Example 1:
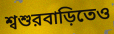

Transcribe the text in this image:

শ্বশুরবাড়িতেও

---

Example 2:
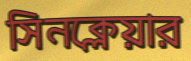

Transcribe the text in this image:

সিনক্লেয়ার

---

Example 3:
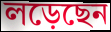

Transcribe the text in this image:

লড়েছেন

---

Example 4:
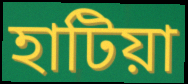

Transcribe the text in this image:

হাটিয়া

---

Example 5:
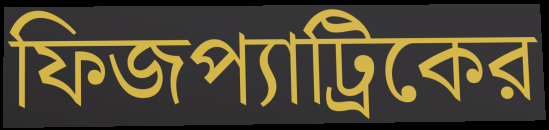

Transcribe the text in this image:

ফিজপ্যাট্রিকের